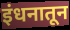
इंधनातून